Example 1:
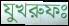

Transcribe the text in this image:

যুখরুফঃ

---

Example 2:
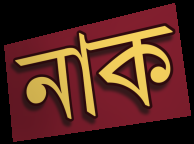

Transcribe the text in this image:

নাক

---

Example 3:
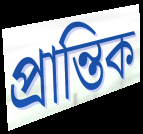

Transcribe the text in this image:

প্রান্তিক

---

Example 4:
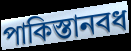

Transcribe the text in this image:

পাকিস্তানবধ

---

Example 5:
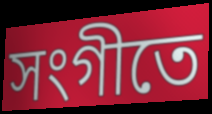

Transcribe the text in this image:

সংগীতে